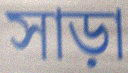
সাড়া